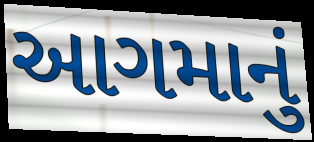
આગમાનું